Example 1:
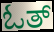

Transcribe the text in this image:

ಓತ್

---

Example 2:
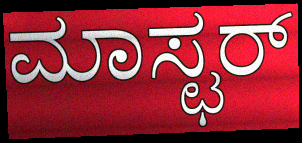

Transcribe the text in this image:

ಮಾಸ್ಟರ್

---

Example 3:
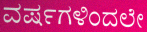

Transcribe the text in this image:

ವರ್ಷಗಳಿಂದಲೇ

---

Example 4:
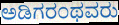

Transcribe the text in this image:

ಅಡಿಗರಂಥವರು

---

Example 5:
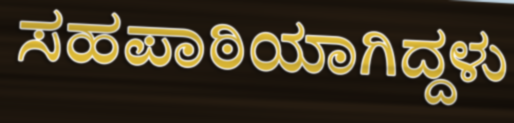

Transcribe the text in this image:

ಸಹಪಾಠಿಯಾಗಿದ್ದಳು